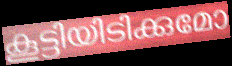
കൂട്ടിയിടിക്കുമോ